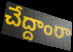
చేద్దాంరా